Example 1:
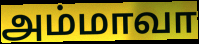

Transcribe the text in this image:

அம்மாவா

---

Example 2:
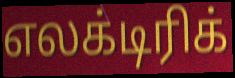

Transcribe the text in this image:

எலக்டிரிக்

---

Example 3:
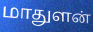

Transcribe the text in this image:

மாதுளன்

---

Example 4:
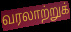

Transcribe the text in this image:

வரலாற்றுக்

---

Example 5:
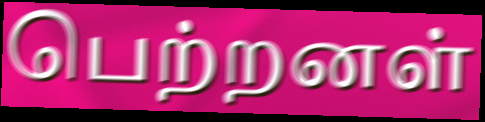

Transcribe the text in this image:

பெற்றனள்